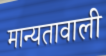
मान्यतावाली